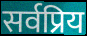
सर्वप्रिय